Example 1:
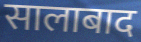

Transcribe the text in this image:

सालाबाद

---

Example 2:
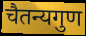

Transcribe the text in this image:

चैतन्यगुण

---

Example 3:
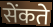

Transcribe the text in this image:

सेंकते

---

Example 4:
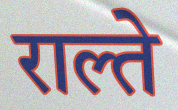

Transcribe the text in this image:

राल्ते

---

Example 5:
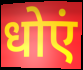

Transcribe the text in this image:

धोएं